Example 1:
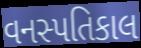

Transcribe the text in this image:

વનસ્પતિકાલ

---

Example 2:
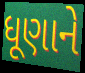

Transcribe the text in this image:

ધૂણાને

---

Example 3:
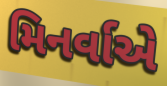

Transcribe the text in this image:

મિનર્વાએ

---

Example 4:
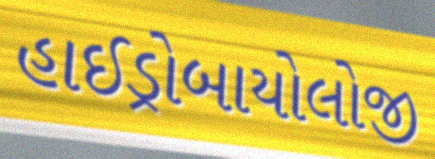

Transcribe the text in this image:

હાઈડ્રોબાયોલોજી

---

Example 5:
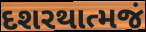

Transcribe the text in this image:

દશરથાત્મજં